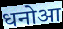
धनोआ